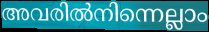
അവരിൽനിന്നെല്ലാം